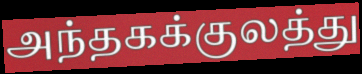
அந்தகக்குலத்து